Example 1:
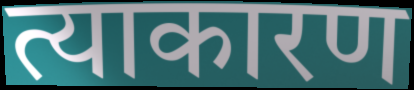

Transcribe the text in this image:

त्याकारण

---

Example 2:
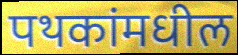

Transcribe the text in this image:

पथकांमधील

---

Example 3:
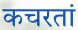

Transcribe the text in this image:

कचरतां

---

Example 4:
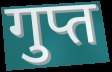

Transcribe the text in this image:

गुप्त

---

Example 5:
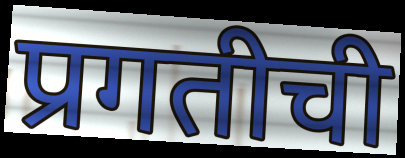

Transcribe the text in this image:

प्रगतीची